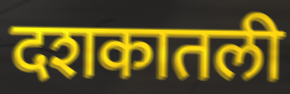
दशकातली